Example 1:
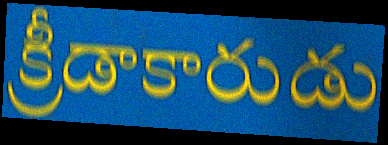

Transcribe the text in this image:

క్రీడాకారుడు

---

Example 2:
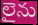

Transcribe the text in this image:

లైను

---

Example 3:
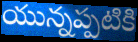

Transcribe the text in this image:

యున్నప్పటికి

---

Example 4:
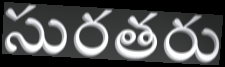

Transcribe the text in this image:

సురతరు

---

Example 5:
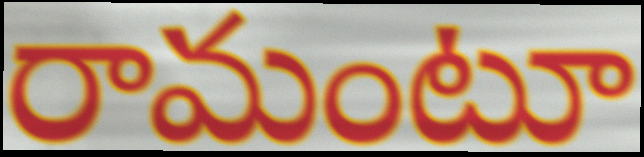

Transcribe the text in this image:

రామంటూ